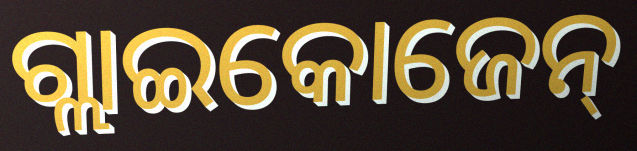
ଗ୍ଲାଇକୋଜେନ୍